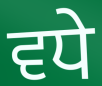
ਵਧੇ